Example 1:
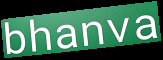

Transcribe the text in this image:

bhanva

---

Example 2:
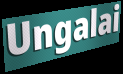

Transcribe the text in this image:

Ungalai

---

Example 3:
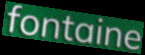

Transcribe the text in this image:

fontaine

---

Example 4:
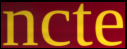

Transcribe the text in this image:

ncte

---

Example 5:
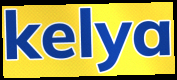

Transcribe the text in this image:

kelya